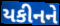
યકીનને